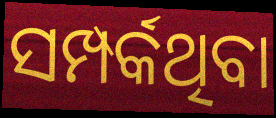
ସମ୍ପର୍କଥିବା